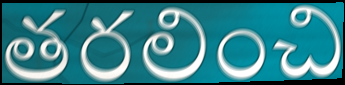
తరలించి